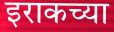
इराकच्या